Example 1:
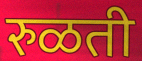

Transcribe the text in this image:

रुळती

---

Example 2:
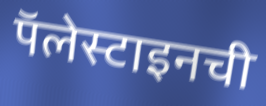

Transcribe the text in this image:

पॅलेस्टाइनची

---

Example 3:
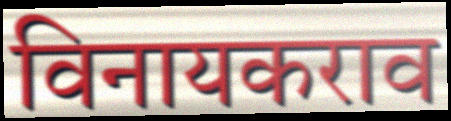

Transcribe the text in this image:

विनायकराव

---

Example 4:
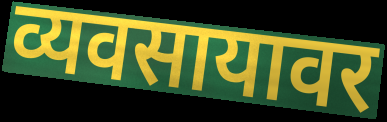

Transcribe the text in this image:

व्यवसायावर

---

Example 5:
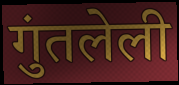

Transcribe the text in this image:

गुंतलेली